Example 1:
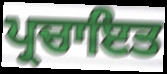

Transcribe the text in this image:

ਪ੍ਰਚਾਇਤ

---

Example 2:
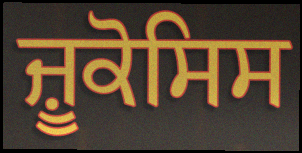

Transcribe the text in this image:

ਜ਼ੂਕੋਸਿਸ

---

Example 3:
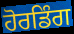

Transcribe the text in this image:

ਹੋਰਡਿੰਗ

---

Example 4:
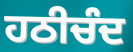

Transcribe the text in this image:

ਹਠੀਚੰਦ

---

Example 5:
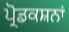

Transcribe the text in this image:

ਪ੍ਰੋਡਕਸ਼ਨਾਂ